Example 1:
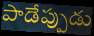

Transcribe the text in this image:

పాడేప్పుడు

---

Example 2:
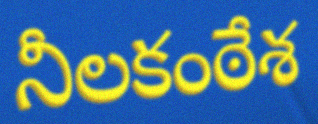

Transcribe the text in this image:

నీలకంఠేశ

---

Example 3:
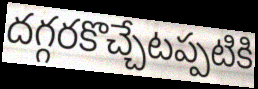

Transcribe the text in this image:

దగ్గరకొచ్చేటప్పటికి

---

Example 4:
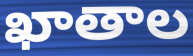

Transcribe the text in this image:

ఖాతాల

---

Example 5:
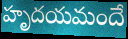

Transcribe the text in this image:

హృదయమందే